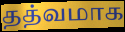
தத்வமாக